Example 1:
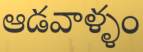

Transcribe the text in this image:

ఆడవాళ్ళం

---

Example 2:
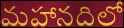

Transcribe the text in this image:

మహానదిలో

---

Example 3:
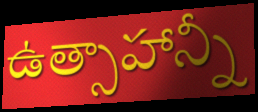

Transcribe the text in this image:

ఉత్సాహాన్నీ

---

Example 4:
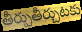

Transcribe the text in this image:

తీర్పుతీర్చుటకు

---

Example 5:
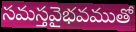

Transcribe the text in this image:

సమస్తవైభవముతో